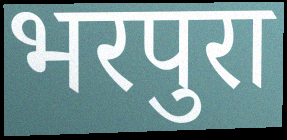
भरपुरा